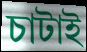
চাটাই